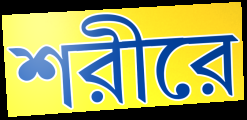
শরীরে